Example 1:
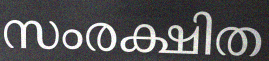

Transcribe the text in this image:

സംരക്ഷിത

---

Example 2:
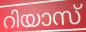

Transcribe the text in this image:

റിയാസ്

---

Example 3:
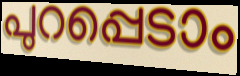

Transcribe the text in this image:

പുറപ്പെടാം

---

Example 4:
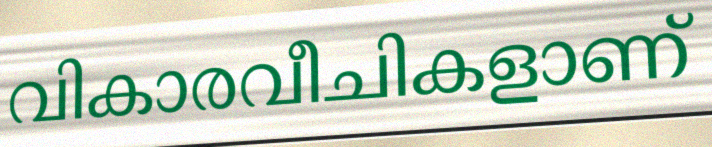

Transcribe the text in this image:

വികാരവീചികളാണ്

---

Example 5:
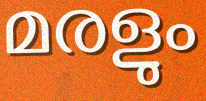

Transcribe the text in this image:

മരളും